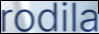
rodila